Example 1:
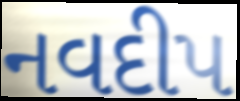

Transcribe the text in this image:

નવદીપ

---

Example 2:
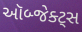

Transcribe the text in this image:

ઑબ્જેક્ટ્સ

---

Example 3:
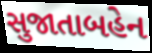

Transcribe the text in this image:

સુજાતાબહેન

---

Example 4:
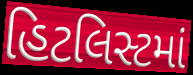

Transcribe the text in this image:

હિટલિસ્ટમાં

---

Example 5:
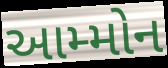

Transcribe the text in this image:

આમ્મોન